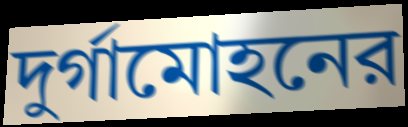
দুর্গামোহনের